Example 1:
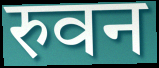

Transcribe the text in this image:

रुवन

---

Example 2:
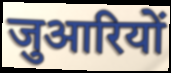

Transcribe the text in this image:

जुआरियों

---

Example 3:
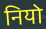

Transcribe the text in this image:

नियो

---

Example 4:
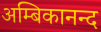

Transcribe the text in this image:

अम्बिकानन्द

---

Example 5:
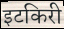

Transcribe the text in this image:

इटकिरी